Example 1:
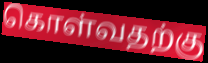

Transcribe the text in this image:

கொள்வதற்கு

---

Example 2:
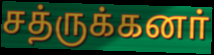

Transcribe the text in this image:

சத்ருக்கனர்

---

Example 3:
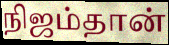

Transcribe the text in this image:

நிஜம்தான்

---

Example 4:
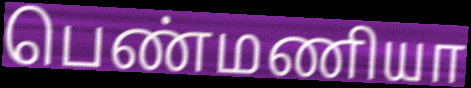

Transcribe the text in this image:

பெண்மணியா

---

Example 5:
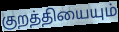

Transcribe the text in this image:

குறத்தியையும்